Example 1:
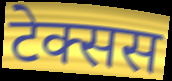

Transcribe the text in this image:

टेक्सस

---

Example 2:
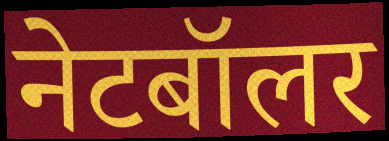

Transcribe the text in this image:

नेटबॉलर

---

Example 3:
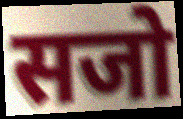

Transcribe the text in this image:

सजो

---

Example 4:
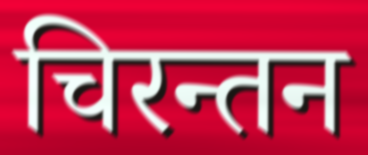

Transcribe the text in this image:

चिरन्तन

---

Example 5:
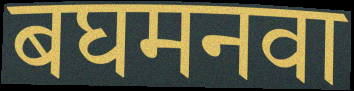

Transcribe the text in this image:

बघमनवा